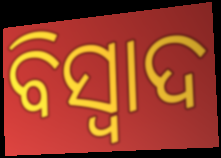
ବିସ୍ୱାଦ